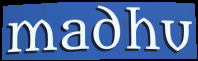
madhu